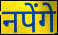
नपेंगे